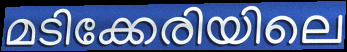
മടിക്കേരിയിലെ